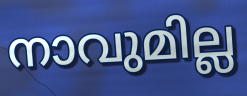
നാവുമില്ല